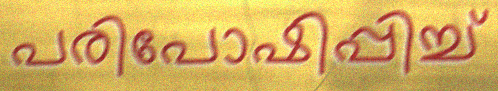
പരിപോഷിപ്പിച്ച്